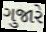
ગુજારે